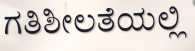
ಗತಿಶೀಲತೆಯಲ್ಲಿ